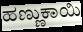
ಹಣ್ಣುಕಾಯಿ